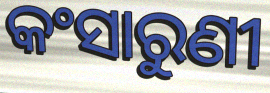
କଂସାରୁଣୀ